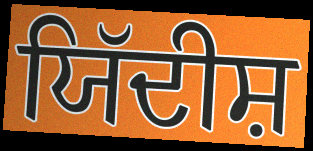
ਯਿੱਦੀਸ਼